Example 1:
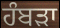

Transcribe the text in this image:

ਹੰਬੜਾ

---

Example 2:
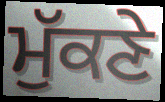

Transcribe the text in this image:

ਮੁੱਕਣੇ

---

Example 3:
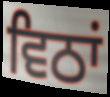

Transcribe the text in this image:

ਵਿਠਾਂ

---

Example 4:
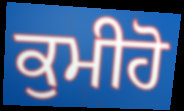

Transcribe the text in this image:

ਕੁਮੀਹੋ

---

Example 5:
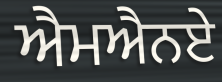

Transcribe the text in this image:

ਐਮਐਨਏ